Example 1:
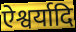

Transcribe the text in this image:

ऐश्वर्यादि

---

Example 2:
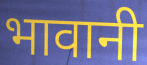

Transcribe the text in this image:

भावानी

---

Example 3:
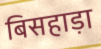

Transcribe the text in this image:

बिसहाड़ा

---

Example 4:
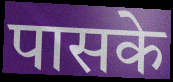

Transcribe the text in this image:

पासके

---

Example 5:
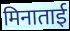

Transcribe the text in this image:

मिनाताई